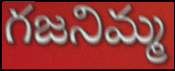
గజనిమ్మ